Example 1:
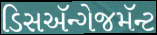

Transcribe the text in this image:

ડિસઍન્ગેજમૅન્ટ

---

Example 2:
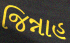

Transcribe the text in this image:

જિન્નાહ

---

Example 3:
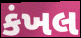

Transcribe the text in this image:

કંખલ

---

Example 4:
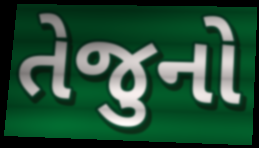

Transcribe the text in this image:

તેજુનો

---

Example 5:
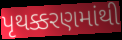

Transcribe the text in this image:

પૃથક્કરણમાંથી